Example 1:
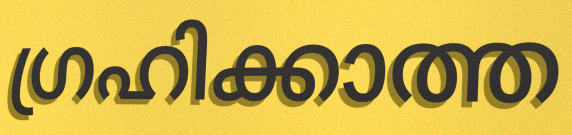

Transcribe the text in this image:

ഗ്രഹിക്കാത്ത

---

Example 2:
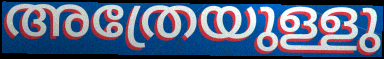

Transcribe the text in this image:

അത്രേയുള്ളു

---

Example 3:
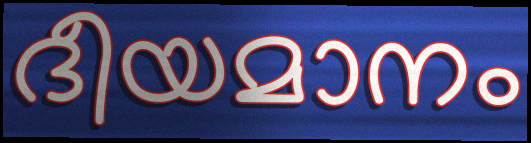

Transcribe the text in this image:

ദീയമാനം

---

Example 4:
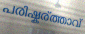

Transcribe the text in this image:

പരിഷ്കര്ത്താവ്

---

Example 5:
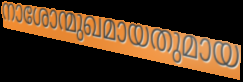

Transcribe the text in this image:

നാശോന്മുഖമായതുമായ